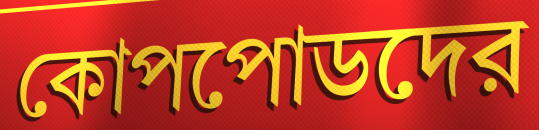
কোপপোডদের